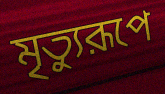
মৃত্যুরূপে